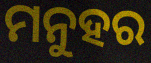
ମନୁହର